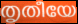
തൃതീയേ